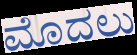
ಮೊದಲು